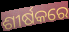
ଶୀର୍ଷକରେ